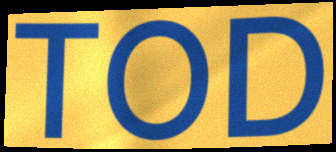
TOD